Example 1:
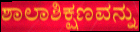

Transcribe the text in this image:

ಶಾಲಾಶಿಕ್ಷಣವನ್ನು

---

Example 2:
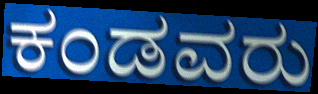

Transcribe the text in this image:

ಕಂಡವರು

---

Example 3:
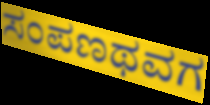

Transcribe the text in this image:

ಸಂಪಣಥವಗ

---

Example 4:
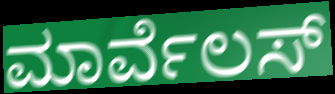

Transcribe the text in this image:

ಮಾರ್ವೆಲಸ್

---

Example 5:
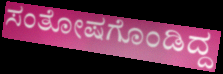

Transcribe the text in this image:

ಸಂತೋಷಗೊಂಡಿದ್ದ